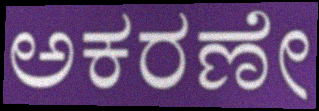
ಅಕರಣೇ